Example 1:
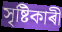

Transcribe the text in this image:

সৃষ্টিকাৰী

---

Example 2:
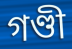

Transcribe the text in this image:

গণ্ডী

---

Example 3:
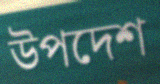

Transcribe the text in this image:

উপদেশ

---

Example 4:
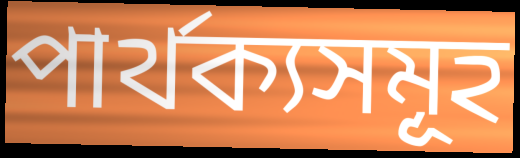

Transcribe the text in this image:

পাৰ্থক্যসমূহ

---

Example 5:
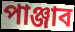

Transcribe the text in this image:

পাঞ্জাব